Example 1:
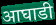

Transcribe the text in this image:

आघाडी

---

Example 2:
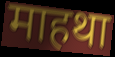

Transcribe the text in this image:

माहथा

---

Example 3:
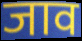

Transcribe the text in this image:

जाव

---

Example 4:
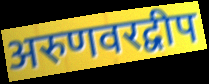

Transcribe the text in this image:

अरुणवरद्वीप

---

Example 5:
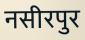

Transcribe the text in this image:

नसीरपुर